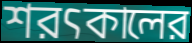
শরৎকালের